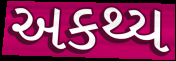
અકથ્ય